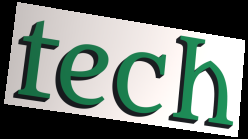
tech